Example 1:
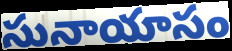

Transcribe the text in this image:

సునాయాసం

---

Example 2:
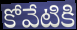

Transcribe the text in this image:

కోవేటికి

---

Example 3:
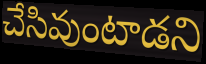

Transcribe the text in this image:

చేసివుంటాడని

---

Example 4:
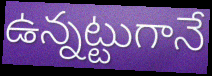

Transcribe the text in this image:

ఉన్నట్టుగానే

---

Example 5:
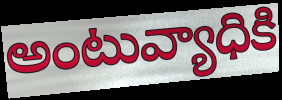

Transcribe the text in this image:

అంటువ్యాధికి